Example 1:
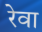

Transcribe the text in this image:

रेवा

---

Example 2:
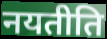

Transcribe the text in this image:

नयतीति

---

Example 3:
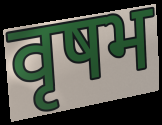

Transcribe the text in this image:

वृषभ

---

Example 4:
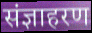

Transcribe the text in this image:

संज्ञाहरण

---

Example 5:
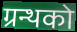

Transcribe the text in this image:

ग्रन्थको